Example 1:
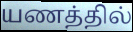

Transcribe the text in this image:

யணத்தில்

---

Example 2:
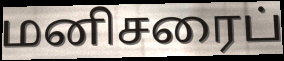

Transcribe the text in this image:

மனிசரைப்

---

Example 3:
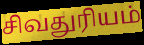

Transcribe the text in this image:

சிவதுரியம்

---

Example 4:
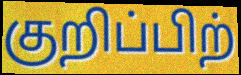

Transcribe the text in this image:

குறிப்பிற்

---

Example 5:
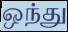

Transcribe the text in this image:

ஒந்து